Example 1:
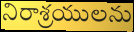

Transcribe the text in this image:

నిరాశ్రయులను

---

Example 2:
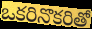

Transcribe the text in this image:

ఒకరినొకరితో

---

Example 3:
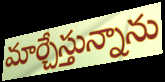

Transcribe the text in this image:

మార్చేస్తున్నాను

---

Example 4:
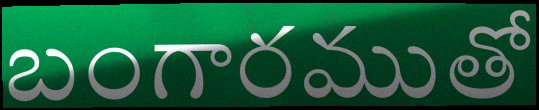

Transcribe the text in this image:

బంగారముతో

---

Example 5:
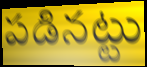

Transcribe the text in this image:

పడినట్టు